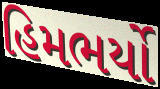
હિમભર્યો